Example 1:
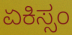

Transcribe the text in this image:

ಏಕಿಸ್ಸಂ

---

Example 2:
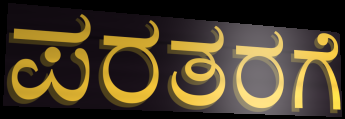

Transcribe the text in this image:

ಪರತರಗೆ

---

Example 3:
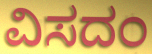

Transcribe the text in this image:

ವಿಸದಂ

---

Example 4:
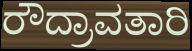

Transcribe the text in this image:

ರೌದ್ರಾವತಾರಿ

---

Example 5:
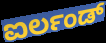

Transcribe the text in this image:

ಐರ್ಲಂಡ್